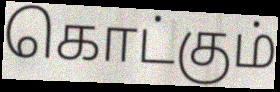
கொட்கும்